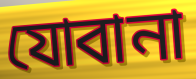
যোবানা